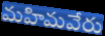
మహిమవేరు